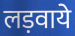
लड़वाये